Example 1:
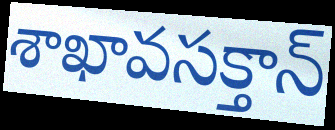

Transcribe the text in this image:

శాఖావసక్తాన్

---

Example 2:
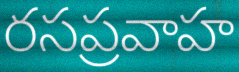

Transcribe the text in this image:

రసప్రవాహ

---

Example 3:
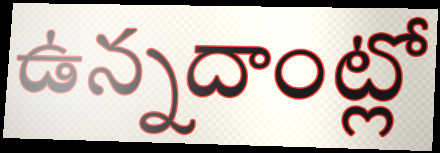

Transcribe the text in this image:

ఉన్నదాంట్లో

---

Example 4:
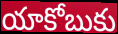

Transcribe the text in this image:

యాకోబుకు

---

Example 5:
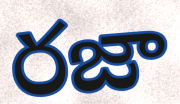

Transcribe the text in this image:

రజా